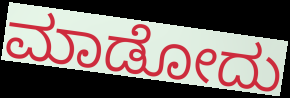
ಮಾಡೋದು